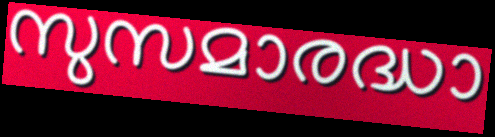
സുസമാരദ്ധാ